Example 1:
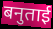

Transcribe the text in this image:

बनुताई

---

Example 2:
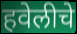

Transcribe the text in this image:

हवेलीचे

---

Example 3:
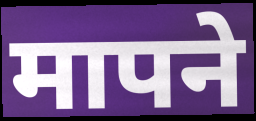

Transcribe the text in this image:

मापने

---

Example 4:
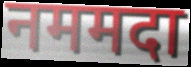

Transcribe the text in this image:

नममदा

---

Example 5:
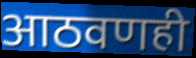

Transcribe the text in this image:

आठवणही